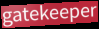
gatekeeper